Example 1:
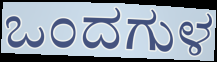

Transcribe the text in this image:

ಒಂದಗುಳ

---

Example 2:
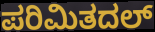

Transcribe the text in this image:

ಪರಿಮಿತದಲ್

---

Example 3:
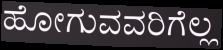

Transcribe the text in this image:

ಹೋಗುವವರಿಗೆಲ್ಲ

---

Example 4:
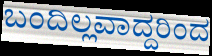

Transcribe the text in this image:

ಬಂದಿಲ್ಲವಾದ್ದರಿಂದ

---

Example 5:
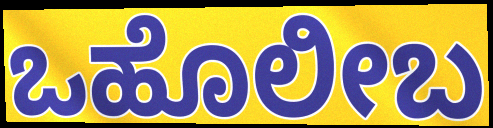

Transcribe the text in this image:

ಒಹೊಲೀಬ